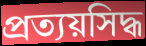
প্রত্যয়সিদ্ধ